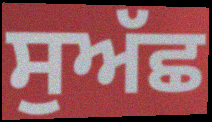
ਸੁਅੱਛ